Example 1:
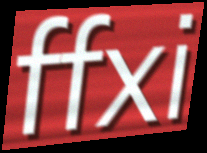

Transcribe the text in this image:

ffxi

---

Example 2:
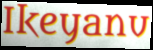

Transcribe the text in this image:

Ikeyanu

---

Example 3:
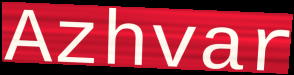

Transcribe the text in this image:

Azhvar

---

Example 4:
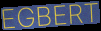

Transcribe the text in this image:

EGBERT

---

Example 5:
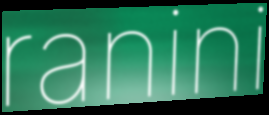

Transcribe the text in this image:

ranini